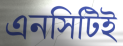
এনসিটিই